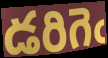
డరిగెఁ